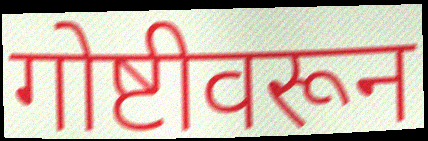
गोष्टीवरून